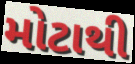
મોટાથી